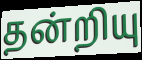
தன்றியு